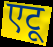
एटू